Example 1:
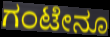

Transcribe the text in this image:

ಗಂಟೇನೂ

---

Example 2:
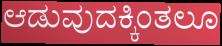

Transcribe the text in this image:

ಆಡುವುದಕ್ಕಿಂತಲೂ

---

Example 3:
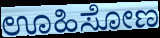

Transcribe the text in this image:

ಊಹಿಸೋಣ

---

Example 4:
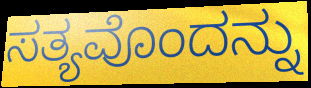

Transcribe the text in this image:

ಸತ್ಯವೊಂದನ್ನು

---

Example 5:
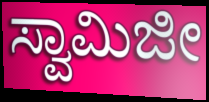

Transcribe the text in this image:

ಸ್ವಾಮಿಜೀ